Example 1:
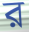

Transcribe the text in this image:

ব়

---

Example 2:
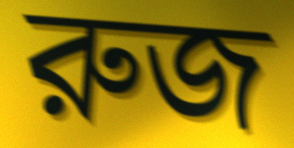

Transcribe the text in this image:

রুজ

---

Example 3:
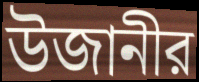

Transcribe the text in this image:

উজানীর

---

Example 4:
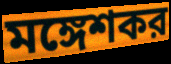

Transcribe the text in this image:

মঙ্গেশকর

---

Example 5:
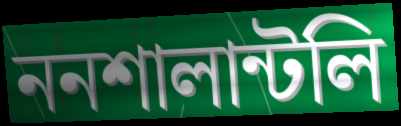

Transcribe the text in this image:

ননশালান্টলি